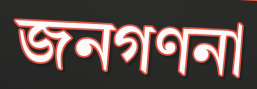
জনগণনা